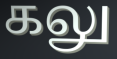
கலு